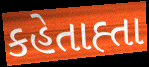
કહેતાહ્તા